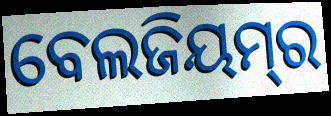
ବେଲଜିୟମ୍‌ର